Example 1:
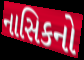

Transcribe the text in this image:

નાસિકનો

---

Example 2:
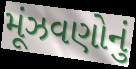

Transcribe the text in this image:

મૂંઝવણોનું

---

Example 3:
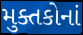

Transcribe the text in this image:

મુક્તકોનાં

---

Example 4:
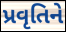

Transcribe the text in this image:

પ્રવૃતિને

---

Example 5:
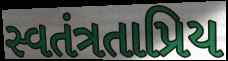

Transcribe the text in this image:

સ્વતંત્રતાપ્રિય